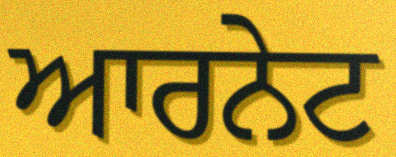
ਆਰਨੇਟ